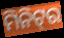
ମିନିଟ୍‌ର